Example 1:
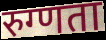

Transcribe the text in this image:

रुग्णता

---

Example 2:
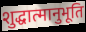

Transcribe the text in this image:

शुद्धात्मानुभूति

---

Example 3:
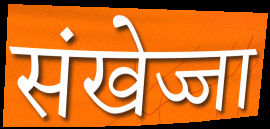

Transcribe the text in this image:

संखेज्जा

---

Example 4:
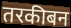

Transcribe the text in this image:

तरकीबन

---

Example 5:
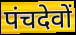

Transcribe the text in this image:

पंचदेवों